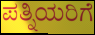
ಪತ್ನಿಯರಿಗೆ